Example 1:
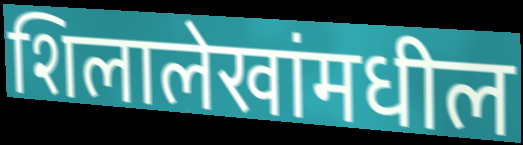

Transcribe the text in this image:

शिलालेखांमधील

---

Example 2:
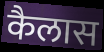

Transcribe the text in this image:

कैलास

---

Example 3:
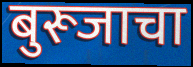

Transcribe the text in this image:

बुरूजाचा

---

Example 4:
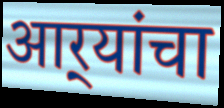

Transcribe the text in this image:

आर्यांचा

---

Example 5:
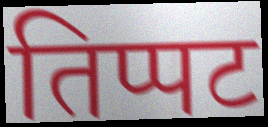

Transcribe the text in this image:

तिप्पट